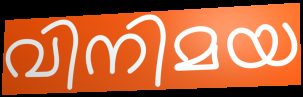
വിനിമയ